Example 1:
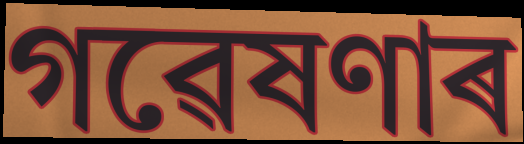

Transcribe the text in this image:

গৱেষণাৰ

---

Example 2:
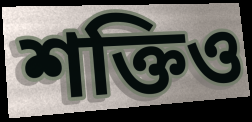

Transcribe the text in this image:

শক্তিও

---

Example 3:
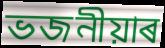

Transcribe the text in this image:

ভজনীয়াৰ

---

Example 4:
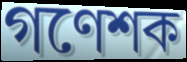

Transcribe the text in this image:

গণেশক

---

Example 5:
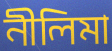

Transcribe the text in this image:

নীলিমা